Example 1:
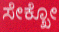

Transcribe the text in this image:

ಸೇಕ್ಖೋ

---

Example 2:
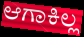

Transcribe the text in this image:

ಆಗಾಕಿಲ್ಲ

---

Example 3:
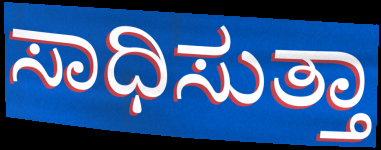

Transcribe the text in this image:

ಸಾಧಿಸುತ್ತಾ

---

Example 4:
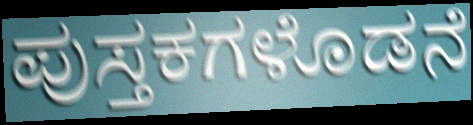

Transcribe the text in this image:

ಪುಸ್ತಕಗಳೊಡನೆ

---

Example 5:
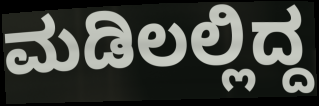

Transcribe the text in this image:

ಮಡಿಲಲ್ಲಿದ್ದ